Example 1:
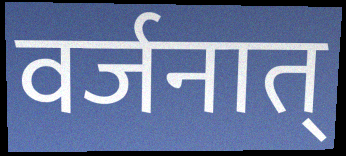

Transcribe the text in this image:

वर्जनात्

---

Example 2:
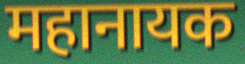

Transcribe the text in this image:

महानायक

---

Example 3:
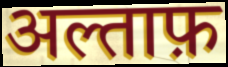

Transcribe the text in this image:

अल्ताफ़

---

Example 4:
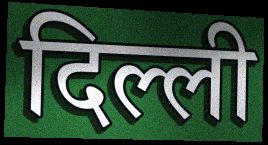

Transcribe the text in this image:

दिल्‍ली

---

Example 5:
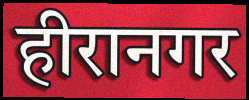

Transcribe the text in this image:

हीरानगर